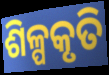
ଶିଳ୍ପକୃତି